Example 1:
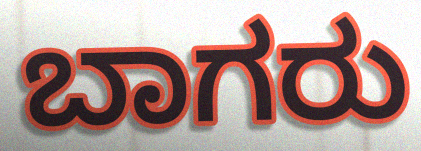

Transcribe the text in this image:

ಬಾಗರು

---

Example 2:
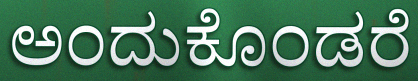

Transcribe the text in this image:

ಅಂದುಕೊಂಡರೆ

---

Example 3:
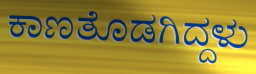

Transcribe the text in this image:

ಕಾಣತೊಡಗಿದ್ದಳು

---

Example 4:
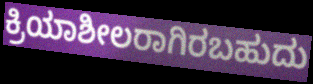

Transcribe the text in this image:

ಕ್ರಿಯಾಶೀಲರಾಗಿರಬಹುದು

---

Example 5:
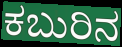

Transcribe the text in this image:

ಕಬುರಿನ